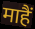
माहैं